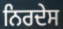
ਨਿਰਦੇਸ